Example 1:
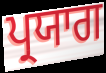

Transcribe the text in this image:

ਪ੍ਰਯਾਗ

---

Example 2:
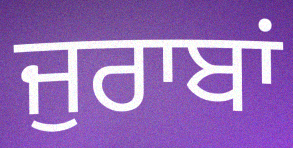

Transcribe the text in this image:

ਜੁਰਾਬਾਂ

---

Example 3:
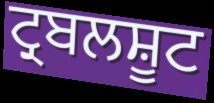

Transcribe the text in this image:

ਟ੍ਰਬਲਸ਼ੂਟ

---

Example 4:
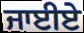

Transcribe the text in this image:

ਜਾਈਏ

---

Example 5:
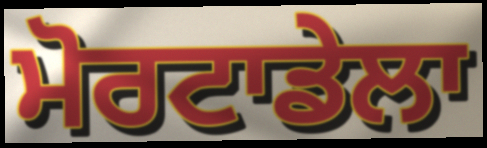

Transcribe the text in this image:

ਮੋਰਟਾਡੇਲਾ